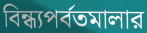
বিন্ধ্যপর্বতমালার